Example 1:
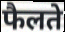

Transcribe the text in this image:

फैलते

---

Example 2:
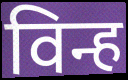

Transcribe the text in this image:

विन्ह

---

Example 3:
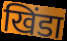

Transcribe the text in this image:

खिंडा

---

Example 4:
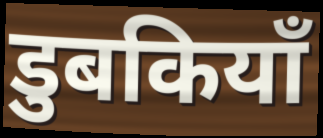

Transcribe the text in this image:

डुबकियाँ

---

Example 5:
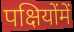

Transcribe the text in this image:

पक्षियोंमें